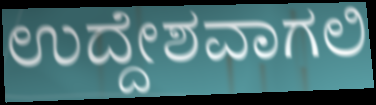
ಉದ್ದೇಶವಾಗಲಿ